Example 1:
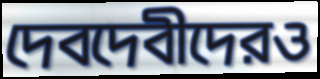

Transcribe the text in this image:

দেবদেবীদেরও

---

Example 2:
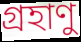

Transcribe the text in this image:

গ্রহাণু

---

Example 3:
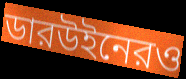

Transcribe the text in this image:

ডারউইনেরও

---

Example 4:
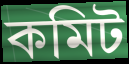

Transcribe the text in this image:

কমিট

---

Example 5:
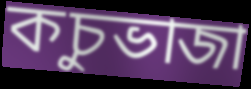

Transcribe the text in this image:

কচুভাজা